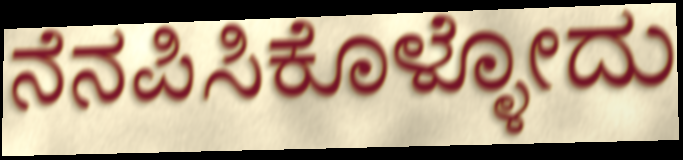
ನೆನಪಿಸಿಕೊಳ್ಳೋದು